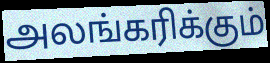
அலங்கரிக்கும்